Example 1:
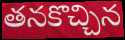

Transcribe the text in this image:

తనకొచ్చిన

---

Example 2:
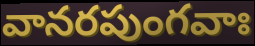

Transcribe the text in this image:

వానరపుంగవాః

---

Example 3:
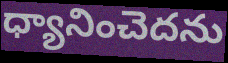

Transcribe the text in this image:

ధ్యానించెదను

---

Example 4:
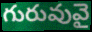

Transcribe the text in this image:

గురువువై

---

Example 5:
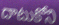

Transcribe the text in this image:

దాటుకోని